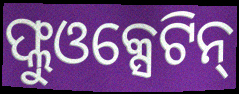
ଫ୍ଲୁଓକ୍ସେଟିନ୍